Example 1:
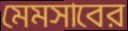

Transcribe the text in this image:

মেমসাবের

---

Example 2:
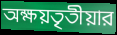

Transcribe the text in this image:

অক্ষয়তৃতীয়ার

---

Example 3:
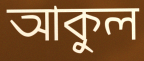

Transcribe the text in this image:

আকুল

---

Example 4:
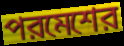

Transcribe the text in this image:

পরমেশের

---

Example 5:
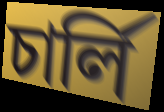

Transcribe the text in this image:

চার্লি